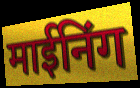
माईनिंग